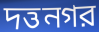
দত্তনগর